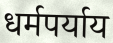
धर्मपर्याय